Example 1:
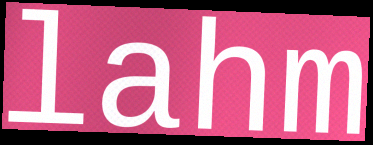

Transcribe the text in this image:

lahm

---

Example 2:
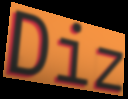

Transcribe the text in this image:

Diz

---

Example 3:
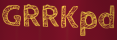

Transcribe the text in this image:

GRRKpd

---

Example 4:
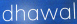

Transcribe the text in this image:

dhawal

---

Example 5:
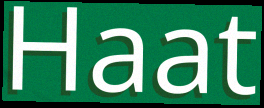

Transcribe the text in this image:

Haat